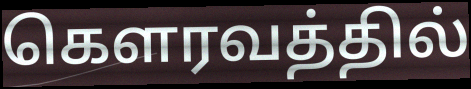
கௌரவத்தில்